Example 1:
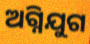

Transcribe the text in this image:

ଅଗ୍ନିଯୁଗ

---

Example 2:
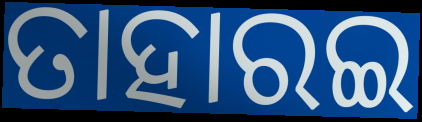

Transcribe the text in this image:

ତାହାରଇ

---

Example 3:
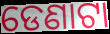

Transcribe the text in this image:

ଡେଣାଟା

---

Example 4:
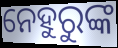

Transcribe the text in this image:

ନେହୁରୁଙ୍କ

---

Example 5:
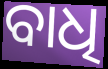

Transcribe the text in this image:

ବାଧି